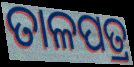
ତାଳପତ୍ର